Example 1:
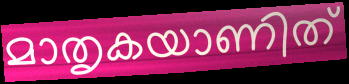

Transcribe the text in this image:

മാതൃകയാണിത്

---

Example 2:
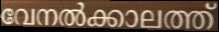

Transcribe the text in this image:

വേനൽക്കാലത്ത്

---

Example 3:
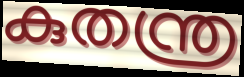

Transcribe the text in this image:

കുതന്ത്ര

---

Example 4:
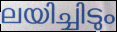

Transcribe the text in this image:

ലയിച്ചിടും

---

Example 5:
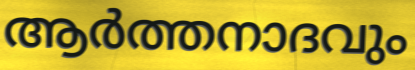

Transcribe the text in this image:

ആർത്തനാദവും